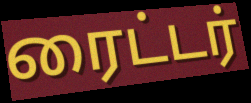
ரைட்டர்